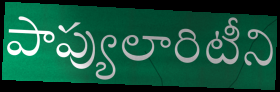
పాప్యులారిటీని